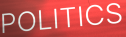
POLITICS